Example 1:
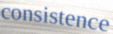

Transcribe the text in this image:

consistence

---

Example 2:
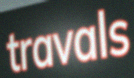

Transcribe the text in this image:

travals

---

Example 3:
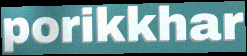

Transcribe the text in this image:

porikkhar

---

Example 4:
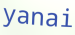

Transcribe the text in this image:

yanai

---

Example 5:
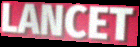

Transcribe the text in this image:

LANCET